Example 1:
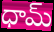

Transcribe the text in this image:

ధామ్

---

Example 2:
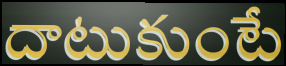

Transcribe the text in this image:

దాటుకుంటే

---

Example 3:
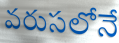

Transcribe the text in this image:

వరుసలోనే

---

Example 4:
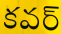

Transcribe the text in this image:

కవర్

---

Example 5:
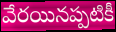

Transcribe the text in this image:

వేరయినప్పటికీ